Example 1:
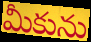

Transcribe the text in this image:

మీకును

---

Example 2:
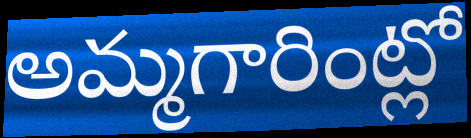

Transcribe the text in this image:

అమ్మగారింట్లో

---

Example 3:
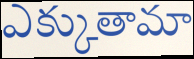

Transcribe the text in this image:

ఎక్కుతామా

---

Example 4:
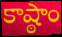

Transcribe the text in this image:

కాష్ఠాం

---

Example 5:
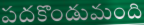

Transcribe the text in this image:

పదకొండుమంది